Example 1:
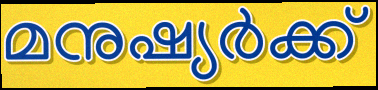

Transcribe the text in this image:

മനുഷ്യർക്ക്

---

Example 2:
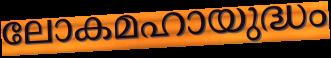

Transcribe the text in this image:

ലോകമഹായുദ്ധം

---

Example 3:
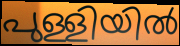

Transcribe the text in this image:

പുള്ളിയിൽ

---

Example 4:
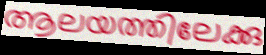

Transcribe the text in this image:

ആലയത്തിലേക്കു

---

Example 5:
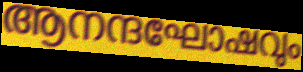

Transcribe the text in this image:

ആനന്ദഘോഷവും